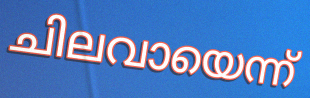
ചിലവായെന്ന്